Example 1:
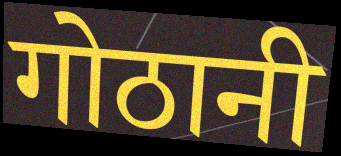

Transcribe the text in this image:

गोठानी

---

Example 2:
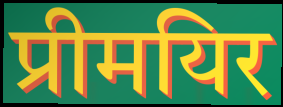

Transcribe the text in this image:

प्रीमयिर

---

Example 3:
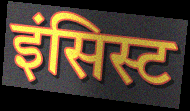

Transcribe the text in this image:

इंसिस्ट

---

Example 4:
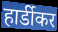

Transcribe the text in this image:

हार्डीकर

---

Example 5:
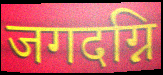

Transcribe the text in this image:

जगदग्नि